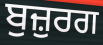
ਬੁਜ਼ੁਰਗ